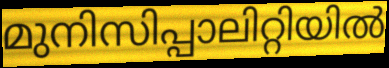
മുനിസിപ്പാലിറ്റിയിൽ